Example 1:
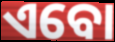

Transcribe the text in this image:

ଏବୋ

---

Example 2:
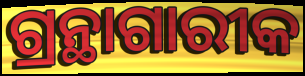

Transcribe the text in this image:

ଗ୍ରନ୍ଥାଗାରୀକ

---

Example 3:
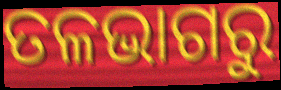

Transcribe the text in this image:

ତଳଭାଗରୁ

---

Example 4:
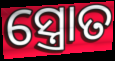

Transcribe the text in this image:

ସ୍ତ୍ରୋତ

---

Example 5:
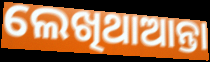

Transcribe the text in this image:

ଲେଖିଥାଆନ୍ତା